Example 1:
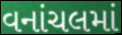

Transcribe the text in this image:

વનાંચલમાં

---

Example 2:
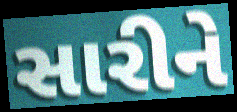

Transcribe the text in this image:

સારીને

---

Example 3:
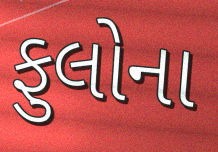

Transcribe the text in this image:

ફુલોના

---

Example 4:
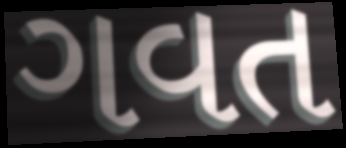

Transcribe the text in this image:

ગવત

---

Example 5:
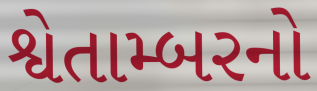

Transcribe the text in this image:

શ્વેતામ્બરનો